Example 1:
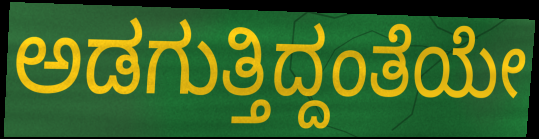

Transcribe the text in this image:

ಅಡಗುತ್ತಿದ್ದಂತೆಯೇ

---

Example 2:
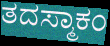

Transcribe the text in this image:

ತದಸ್ಮಾಕಂ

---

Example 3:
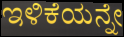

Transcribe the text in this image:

ಇಳಿಕೆಯನ್ನೇ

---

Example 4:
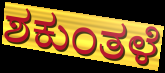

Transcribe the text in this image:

ಶಕುಂತಳೆ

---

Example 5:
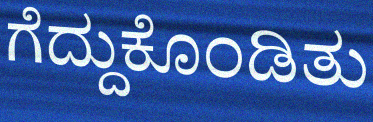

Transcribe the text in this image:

ಗೆದ್ದುಕೊಂಡಿತು